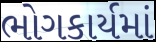
ભોગકાર્યમાં